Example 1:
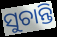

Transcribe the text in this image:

ସୁଚାନ୍ତି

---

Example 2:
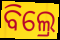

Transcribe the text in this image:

ବିଲ୍ରେ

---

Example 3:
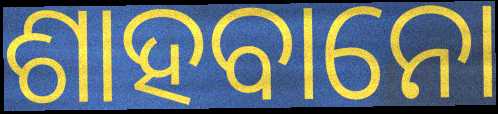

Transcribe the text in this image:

ଶାହବାନୋ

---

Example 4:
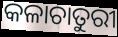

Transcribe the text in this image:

କଳାଚାତୁରୀ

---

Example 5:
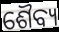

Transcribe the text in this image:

ଶୈବ୍ୟ